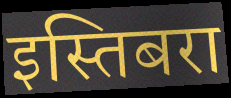
इस्तिबरा